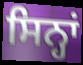
ਸਿਨ੍ਹਾਂ